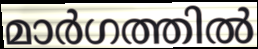
മാർഗത്തിൽ